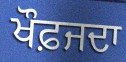
ਖੌਫ਼ਜਦਾ